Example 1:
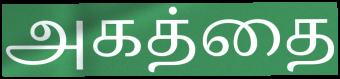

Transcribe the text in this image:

அகத்தை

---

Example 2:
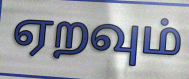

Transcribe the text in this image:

ஏறவும்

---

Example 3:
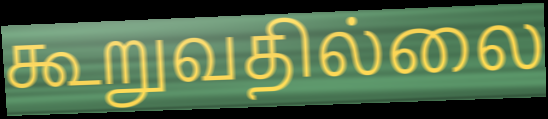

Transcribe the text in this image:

கூறுவதில்லை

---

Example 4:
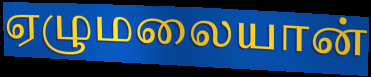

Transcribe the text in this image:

ஏழுமலையான்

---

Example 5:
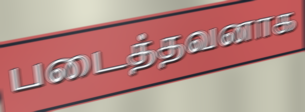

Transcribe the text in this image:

படைத்தவனாக